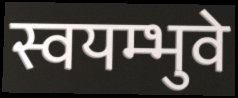
स्वयम्भुवे